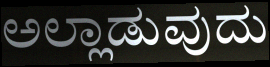
ಅಲ್ಲಾಡುವುದು